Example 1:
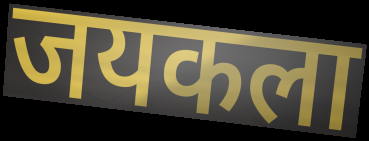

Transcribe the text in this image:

जयकला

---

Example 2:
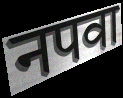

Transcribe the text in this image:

नपवा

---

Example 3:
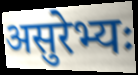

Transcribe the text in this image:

असुरेभ्यः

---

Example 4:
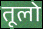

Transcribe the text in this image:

तूलो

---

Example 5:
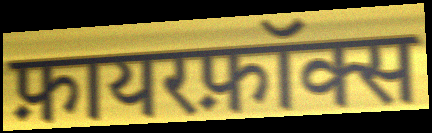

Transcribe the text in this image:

फ़ायरफ़ॉक्स